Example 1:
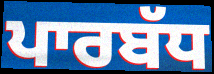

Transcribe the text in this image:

ਪਾਰਬੱਧ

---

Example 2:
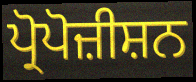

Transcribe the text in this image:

ਪ੍ਰੋਪੋਜ਼ੀਸ਼ਨ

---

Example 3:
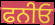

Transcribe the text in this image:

ਫਨੀਓ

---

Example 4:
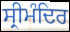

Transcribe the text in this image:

ਸ੍ਰੀਮੰਦਿਰ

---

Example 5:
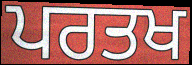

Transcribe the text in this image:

ਪਰਤਖ